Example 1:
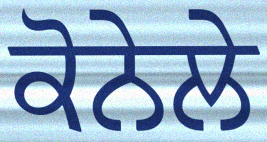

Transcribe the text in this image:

ਕੋਨੇਲੇ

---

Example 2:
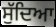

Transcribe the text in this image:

ਸੁੱਦਿਆ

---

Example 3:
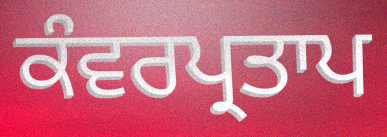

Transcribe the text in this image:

ਕੰਵਰਪ੍ਰਤਾਪ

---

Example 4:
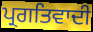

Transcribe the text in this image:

ਪ੍ਰਗਤਿਵਾਦੀ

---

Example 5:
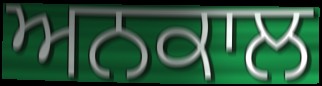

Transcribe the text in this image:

ਅਨਕਾਲ